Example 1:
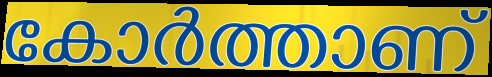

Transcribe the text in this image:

കോർത്താണ്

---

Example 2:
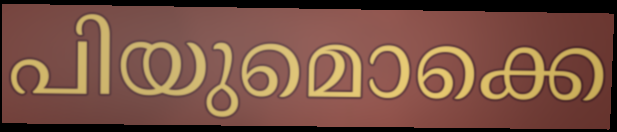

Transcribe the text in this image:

പിയുമൊക്കെ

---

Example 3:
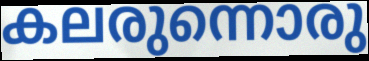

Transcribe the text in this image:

കലരുന്നൊരു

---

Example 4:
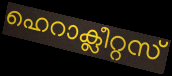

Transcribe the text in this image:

ഹെറാക്ലീറ്റസ്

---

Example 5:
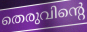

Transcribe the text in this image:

തെരുവിന്റെ